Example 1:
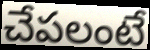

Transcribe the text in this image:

చేపలంటే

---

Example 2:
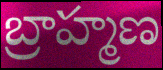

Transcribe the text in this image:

బ్రాహ్మణ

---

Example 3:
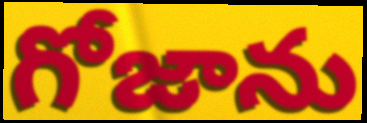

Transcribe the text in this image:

గోజాను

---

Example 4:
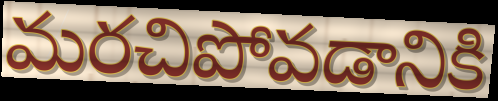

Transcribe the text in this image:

మరచిపోవడానికి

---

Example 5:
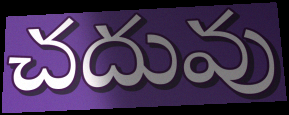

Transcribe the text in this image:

చదువు